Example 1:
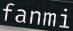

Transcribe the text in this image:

fanmi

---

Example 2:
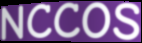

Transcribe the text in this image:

NCCOS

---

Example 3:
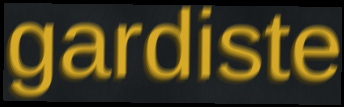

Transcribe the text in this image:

gardiste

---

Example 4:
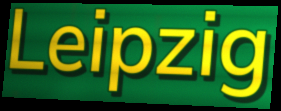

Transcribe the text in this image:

Leipzig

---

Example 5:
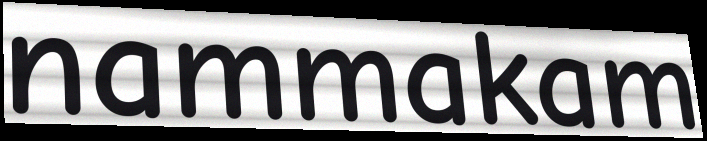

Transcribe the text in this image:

nammakam